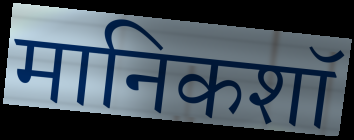
मानिकशॉ